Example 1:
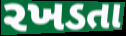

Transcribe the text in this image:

રખડતા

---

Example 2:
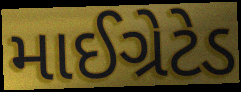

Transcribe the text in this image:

માઈગ્રેટેડ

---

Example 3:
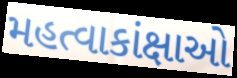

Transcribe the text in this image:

મહત્વાકાંક્ષાઓ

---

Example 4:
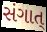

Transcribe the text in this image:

સંગાત્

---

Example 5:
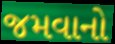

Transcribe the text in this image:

જમવાનો